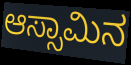
ಆಸ್ಸಾಮಿನ